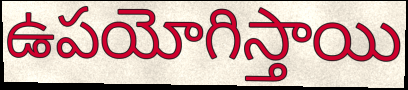
ఉపయోగిస్తాయి